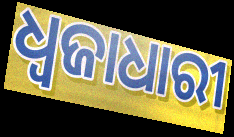
ଧ୍ଵଜାଧାରୀ